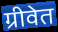
ग्रीवेत